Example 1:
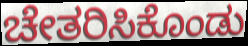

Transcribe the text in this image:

ಚೇತರಿಸಿಕೊಂಡು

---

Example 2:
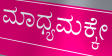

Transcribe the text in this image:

ಮಾಧ್ಯಮಕ್ಕೇ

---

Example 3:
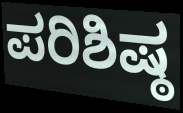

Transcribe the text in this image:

ಪರಿಶಿಷ್ಠ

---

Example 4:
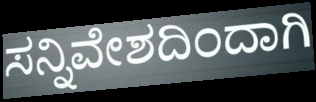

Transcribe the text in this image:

ಸನ್ನಿವೇಶದಿಂದಾಗಿ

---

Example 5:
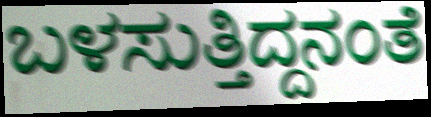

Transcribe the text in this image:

ಬಳಸುತ್ತಿದ್ದನಂತೆ